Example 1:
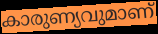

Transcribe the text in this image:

കാരുണ്യവുമാണ്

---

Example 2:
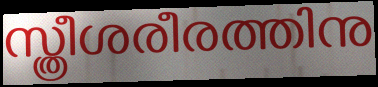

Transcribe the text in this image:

സ്ത്രീശരീരത്തിനു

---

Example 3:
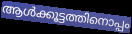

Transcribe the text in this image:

ആൾക്കൂട്ടത്തിനൊപ്പം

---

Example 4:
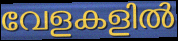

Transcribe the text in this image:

വേളകളിൽ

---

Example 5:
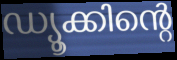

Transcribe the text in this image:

ഡ്യൂക്കിന്റെ